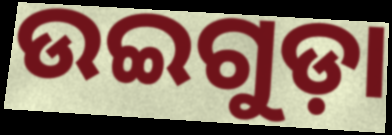
ଉଇଗୁଡ଼ା